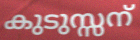
കുടുസ്സന്